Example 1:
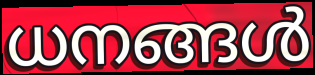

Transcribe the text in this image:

ധനങ്ങൾ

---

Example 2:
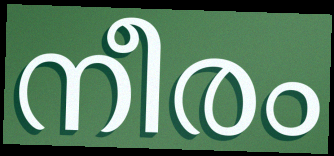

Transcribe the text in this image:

നീരം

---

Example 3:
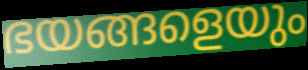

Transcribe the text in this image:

ഭയങ്ങളെയും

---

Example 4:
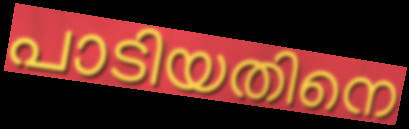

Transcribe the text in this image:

പാടിയതിനെ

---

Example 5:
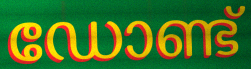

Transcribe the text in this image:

ഡോണ്ട്